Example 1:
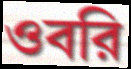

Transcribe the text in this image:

ওবরি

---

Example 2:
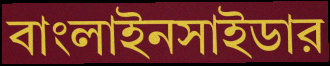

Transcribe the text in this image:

বাংলাইনসাইডার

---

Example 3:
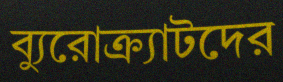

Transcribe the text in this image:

ব্যুরোক্র্যাটদের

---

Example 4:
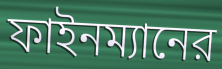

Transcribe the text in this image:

ফাইনম্যানের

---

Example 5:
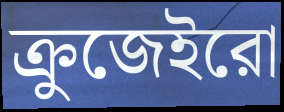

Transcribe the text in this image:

ক্রুজেইরো